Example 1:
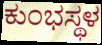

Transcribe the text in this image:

ಕುಂಭಸ್ಥಳ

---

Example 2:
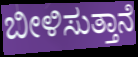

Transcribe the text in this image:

ಬೀಳಿಸುತ್ತಾನೆ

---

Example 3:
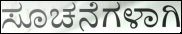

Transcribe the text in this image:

ಸೂಚನೆಗಳಾಗಿ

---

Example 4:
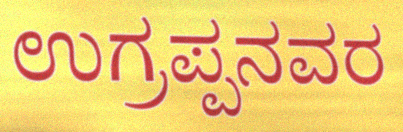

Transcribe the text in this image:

ಉಗ್ರಪ್ಪನವರ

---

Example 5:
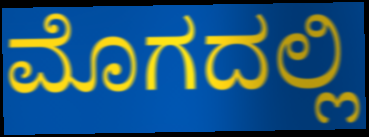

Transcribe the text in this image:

ಮೊಗದಲ್ಲಿ